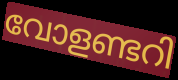
വോളണ്ടറി